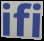
ifi